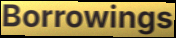
Borrowings